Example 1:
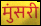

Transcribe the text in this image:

मुंसरी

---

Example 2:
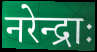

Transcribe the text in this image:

नरेन्द्राः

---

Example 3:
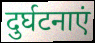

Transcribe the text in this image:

दुर्घटनाएं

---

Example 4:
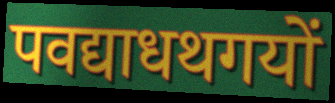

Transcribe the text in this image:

पवद्याधथगयों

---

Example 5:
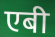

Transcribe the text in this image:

एबी